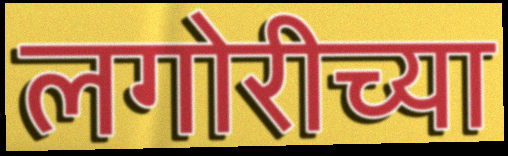
लगोरीच्या